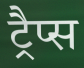
ट्रैप्स